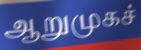
ஆறுமுகச்